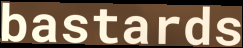
bastards